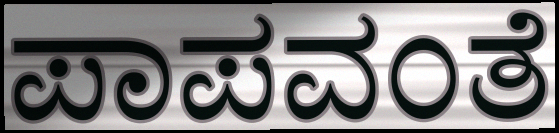
ಪಾಪವಂತೆ